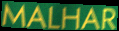
MALHAR